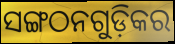
ସଙ୍ଗଠନଗୁଡ଼ିକର